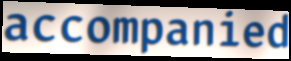
accompanied